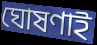
ঘোষণাই